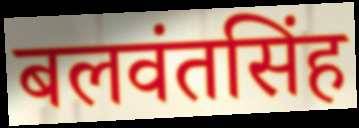
बलवंतसिंह